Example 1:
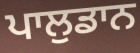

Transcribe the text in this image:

ਪਾਲੁਡਾਨ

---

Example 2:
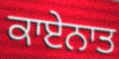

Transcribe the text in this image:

ਕਾਏਨਾਤ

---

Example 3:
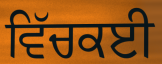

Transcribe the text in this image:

ਵਿੱਚਕਈ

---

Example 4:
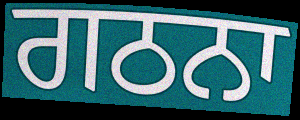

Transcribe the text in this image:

ਗਠਨਾ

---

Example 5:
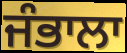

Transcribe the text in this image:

ਜੰਭਾਲਾ